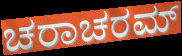
ಚರಾಚರಮ್